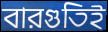
বারগুতিই